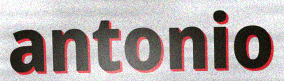
antonio